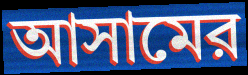
আসামের